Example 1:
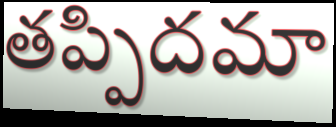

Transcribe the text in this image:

తప్పిదమా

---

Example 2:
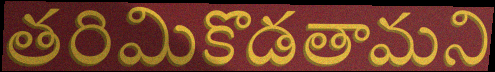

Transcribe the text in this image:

తరిమికొడతామని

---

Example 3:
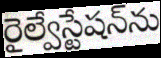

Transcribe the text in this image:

రైల్వేస్టేషన్‌ను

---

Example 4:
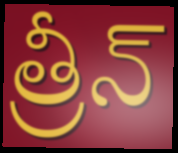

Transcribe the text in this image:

త్రీన్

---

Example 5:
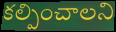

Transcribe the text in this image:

కల్పించాలని